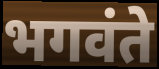
भगवंते